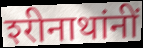
श्रीनाथांनीं